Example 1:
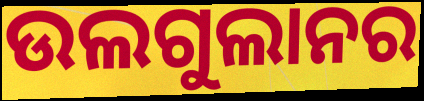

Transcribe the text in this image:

ଉଲଗୁଲାନର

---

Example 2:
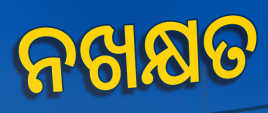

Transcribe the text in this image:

ନଖକ୍ଷତ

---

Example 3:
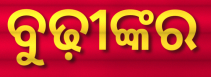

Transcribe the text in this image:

ବୁଢ଼ୀଙ୍କର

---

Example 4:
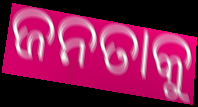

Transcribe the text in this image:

ଜନତାକୁ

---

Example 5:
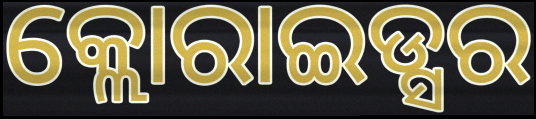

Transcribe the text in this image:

କ୍ଲୋରାଇଡ୍ସର